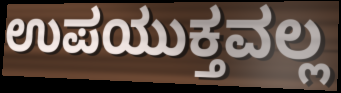
ಉಪಯುಕ್ತವಲ್ಲ